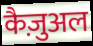
कैज़ुअल